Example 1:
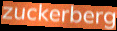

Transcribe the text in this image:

zuckerberg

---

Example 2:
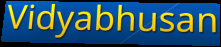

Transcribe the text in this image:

Vidyabhusan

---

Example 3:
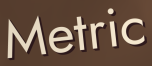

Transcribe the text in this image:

Metric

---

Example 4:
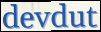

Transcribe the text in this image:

devdut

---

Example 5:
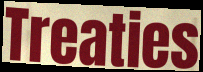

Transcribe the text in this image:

Treaties